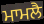
ਮਾਮਲੈ